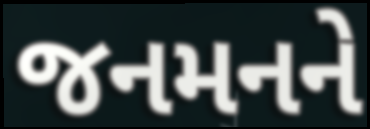
જનમનને